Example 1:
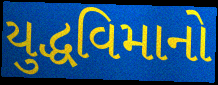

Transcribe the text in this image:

યુદ્ધવિમાનો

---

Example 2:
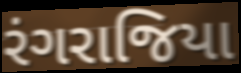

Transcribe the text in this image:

રંગરાજિયા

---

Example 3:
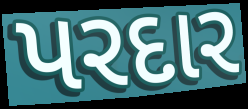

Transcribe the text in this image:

પરદાર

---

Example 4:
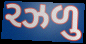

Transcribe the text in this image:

રઝળુ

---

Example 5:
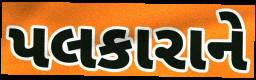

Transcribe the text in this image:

પલકારાને